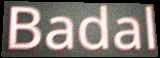
Badal